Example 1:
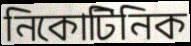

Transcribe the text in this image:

নিকোটিনিক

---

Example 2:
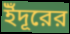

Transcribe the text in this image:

ইঁদূরের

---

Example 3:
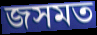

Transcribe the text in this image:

জসমত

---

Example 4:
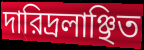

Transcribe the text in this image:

দারিদ্রলাঞ্ছিত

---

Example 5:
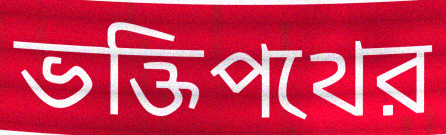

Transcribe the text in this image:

ভক্তিপথের